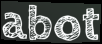
abot